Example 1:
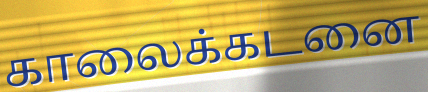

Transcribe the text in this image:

காலைக்கடனை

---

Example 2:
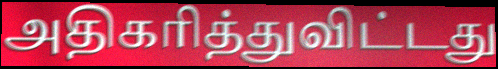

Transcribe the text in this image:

அதிகரித்துவிட்டது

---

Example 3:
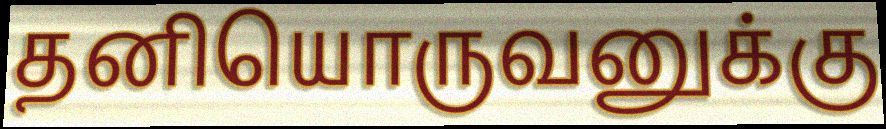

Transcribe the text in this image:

தனியொருவனுக்கு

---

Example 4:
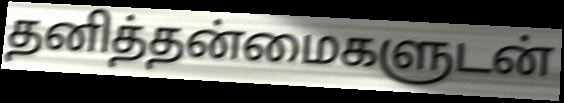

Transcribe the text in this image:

தனித்தன்மைகளுடன்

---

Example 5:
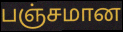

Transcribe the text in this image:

பஞ்சமான